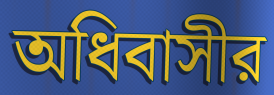
অধিবাসীর